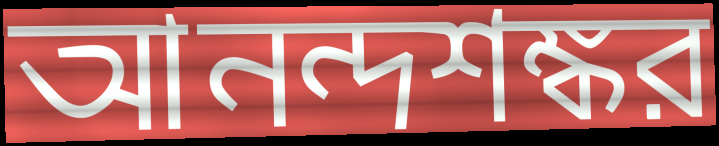
আনন্দশঙ্কর